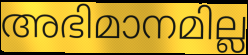
അഭിമാനമില്ല